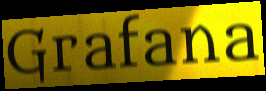
Grafana